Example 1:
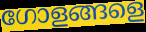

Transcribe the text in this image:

ഗോളങ്ങളെ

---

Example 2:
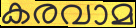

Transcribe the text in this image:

കരവാമ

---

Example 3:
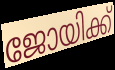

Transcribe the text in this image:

ജോയിക്ക്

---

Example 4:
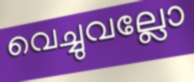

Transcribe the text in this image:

വെച്ചുവല്ലോ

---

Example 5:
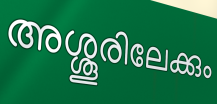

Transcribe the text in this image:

അശ്ശൂരിലേക്കും